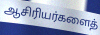
ஆசிரியர்களைத்